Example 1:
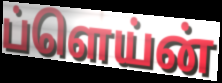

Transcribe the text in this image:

ப்ளெய்ன்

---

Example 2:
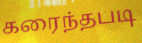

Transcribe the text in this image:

கரைந்தபடி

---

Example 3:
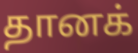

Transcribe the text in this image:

தானக்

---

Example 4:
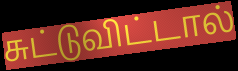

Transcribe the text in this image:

சுட்டுவிட்டால்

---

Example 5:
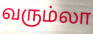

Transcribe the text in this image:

வரும்லா